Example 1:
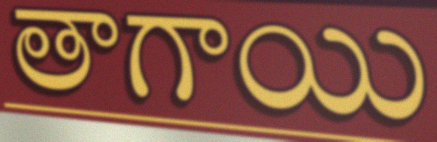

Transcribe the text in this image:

తాగాయి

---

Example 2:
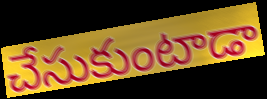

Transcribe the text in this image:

చేసుకుంటాడా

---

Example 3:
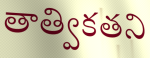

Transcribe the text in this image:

తాత్వికతని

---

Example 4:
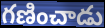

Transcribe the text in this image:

గణించాడు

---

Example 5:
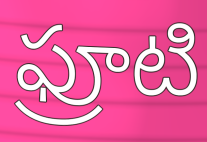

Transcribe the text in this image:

ఫ్రూటి